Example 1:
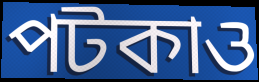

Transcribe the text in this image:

পটকাও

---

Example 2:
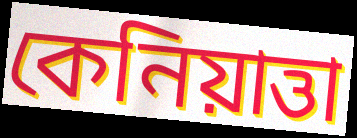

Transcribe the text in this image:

কেনিয়াত্তা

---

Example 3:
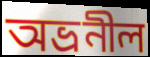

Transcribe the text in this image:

অভ্রনীল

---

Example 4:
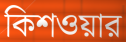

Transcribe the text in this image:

কিশওয়ার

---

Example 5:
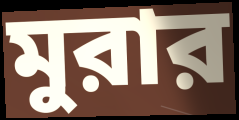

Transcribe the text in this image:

মুরার